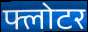
फ्लोटर